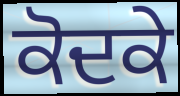
ਕੋਦਕੇ